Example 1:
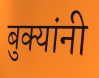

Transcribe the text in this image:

बुक्यांनी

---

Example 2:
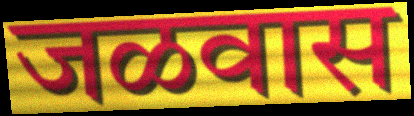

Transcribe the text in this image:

जळवास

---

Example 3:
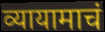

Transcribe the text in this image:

व्यायामाचं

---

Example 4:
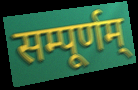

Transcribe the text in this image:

सम्पूर्णम्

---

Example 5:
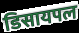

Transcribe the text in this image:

डिसायपल